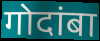
गोदांबा